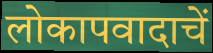
लोकापवादाचें